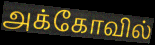
அக்கோவில்